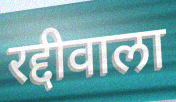
रद्दीवाला